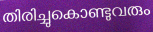
തിരിച്ചുകൊണ്ടുവരും